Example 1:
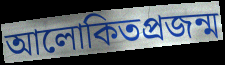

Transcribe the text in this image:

আলোকিতপ্রজন্ম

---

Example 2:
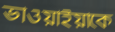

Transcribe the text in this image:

ভাওয়াইয়াকে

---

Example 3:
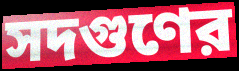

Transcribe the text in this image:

সদগুণের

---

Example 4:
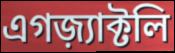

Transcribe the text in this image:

এগজ়্যাক্টলি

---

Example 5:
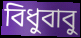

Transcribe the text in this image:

বিধুবাবু